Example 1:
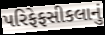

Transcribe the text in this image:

પરિફેફસીકલાનું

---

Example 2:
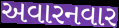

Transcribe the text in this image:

અવારનવાર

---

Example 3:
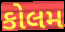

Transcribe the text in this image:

કોલમ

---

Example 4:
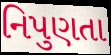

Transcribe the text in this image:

નિપુણતા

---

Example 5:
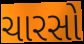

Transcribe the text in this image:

ચારસો